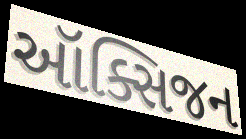
ઑક્સિજન